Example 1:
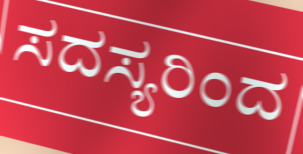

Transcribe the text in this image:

ಸದಸ್ಯರಿಂದ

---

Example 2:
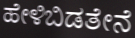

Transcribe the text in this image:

ಹೇಳಿಬಿಡತೇನೆ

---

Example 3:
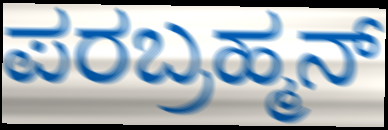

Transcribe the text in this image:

ಪರಬ್ರಹ್ಮನ್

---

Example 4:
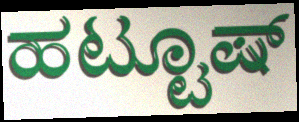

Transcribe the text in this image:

ಹಟ್ಟೂಷ್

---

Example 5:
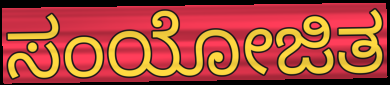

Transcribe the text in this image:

ಸಂಯೋಜಿತ